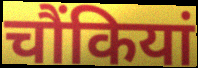
चौंकियां